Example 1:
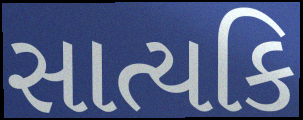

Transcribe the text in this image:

સાત્યકિ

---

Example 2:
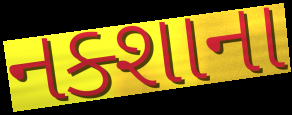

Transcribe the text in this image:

નક્શાના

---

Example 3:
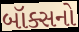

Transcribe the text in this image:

બૉક્સનો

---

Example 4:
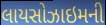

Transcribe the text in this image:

લાયસોઝાઇમની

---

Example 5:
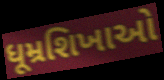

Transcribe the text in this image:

ધૂમ્રશિખાઓ